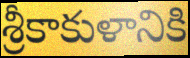
శ్రీకాకుళానికి